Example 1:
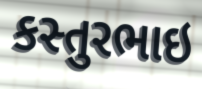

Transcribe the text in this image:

કસ્તુરભાઇ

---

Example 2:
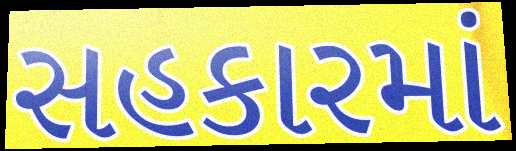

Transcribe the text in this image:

સહકારમાં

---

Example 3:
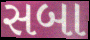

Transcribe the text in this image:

સબા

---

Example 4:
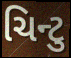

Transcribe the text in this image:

ચિન્ટુ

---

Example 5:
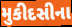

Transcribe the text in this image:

મુકીદસીના